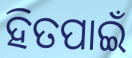
ହିତପାଇଁ